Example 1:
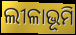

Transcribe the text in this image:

ଲୀଳାଭୂମି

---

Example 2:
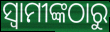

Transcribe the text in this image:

ସ୍ବାମୀଙ୍କଠାରୁ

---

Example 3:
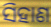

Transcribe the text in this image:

ସିହାଣ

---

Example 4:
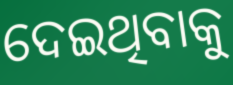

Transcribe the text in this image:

ଦେଇଥିବାକୁ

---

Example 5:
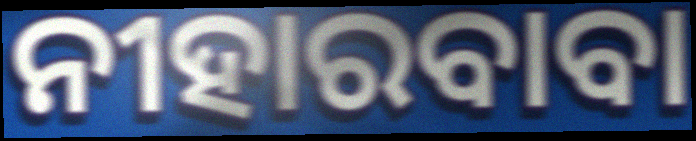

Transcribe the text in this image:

ନୀହାରବାବା